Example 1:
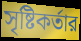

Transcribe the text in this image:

সৃষ্টিকর্তার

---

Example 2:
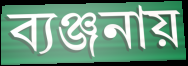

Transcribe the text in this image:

ব্যঞ্জনায়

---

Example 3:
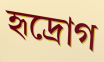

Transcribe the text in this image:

হৃদ্রোগ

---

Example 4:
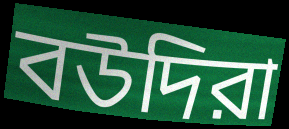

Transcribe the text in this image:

বউদিরা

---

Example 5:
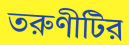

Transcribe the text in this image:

তরুণীটির